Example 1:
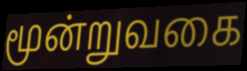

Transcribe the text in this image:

மூன்றுவகை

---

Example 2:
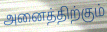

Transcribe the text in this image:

அனைத்திற்கும்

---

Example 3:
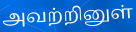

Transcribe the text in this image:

அவற்றினுள்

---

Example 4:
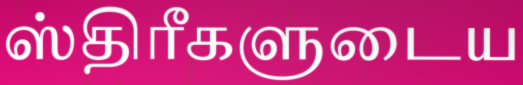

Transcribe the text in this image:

ஸ்திரீகளுடைய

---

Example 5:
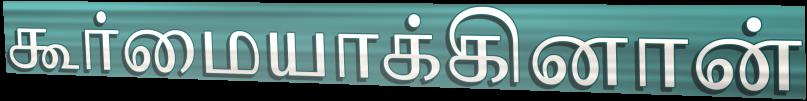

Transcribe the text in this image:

கூர்மையாக்கினான்